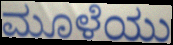
ಮೂಳೆಯು